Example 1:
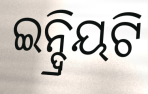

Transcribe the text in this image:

ଇନ୍ଦ୍ରିୟଟି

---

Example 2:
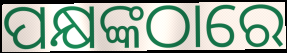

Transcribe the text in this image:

ପକ୍ଷଙ୍କଠାରେ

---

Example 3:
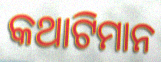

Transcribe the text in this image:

କଥାଟିମାନ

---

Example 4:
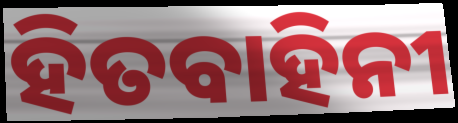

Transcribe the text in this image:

ହିତବାହିନୀ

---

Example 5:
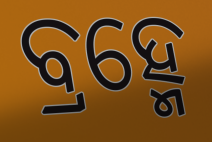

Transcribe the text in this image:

ବ୍ରହ୍ମେ